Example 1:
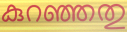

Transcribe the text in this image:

കുറഞ്ഞതു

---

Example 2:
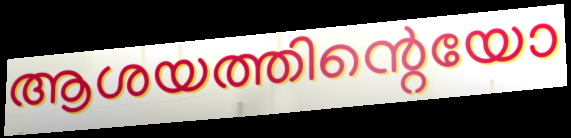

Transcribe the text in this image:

ആശയത്തിന്റെയോ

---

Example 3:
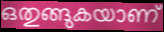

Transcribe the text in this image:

ഒതുങ്ങുകയാണ്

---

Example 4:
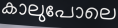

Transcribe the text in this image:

കാലുപോലെ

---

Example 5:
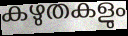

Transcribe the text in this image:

കഴുതകളും